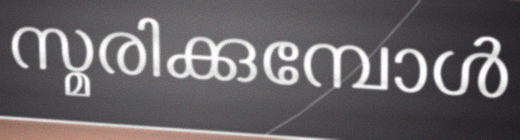
സ്മരിക്കുമ്പോൾ